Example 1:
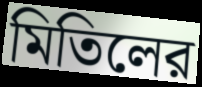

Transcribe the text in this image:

মিতিলের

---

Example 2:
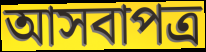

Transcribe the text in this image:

আসবাপত্র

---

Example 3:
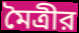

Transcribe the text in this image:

মৈত্রীর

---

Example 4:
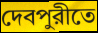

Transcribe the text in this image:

দেবপুরীতে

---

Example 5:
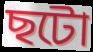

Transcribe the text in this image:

ছটো